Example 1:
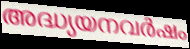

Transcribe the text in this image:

അദ്ധ്യയനവർഷം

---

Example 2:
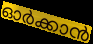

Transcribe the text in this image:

ഓർക്കാൻ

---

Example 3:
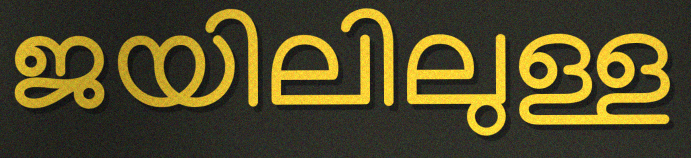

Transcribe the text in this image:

ജയിലിലുള്ള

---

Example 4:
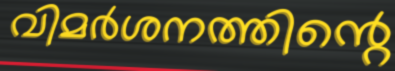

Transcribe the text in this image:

വിമർശനത്തിന്റെ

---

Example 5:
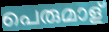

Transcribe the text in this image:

പെരുമാള്